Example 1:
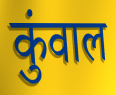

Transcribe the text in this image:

कुंवाल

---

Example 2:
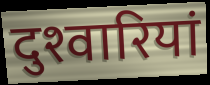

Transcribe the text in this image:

दुश्वारियां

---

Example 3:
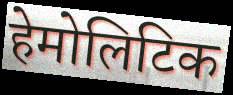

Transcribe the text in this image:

हेमोलिटिक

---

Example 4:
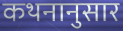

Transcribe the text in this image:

कथनानुसार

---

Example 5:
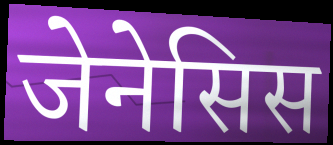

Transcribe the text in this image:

जेनेसिस